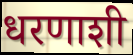
धरणाशी